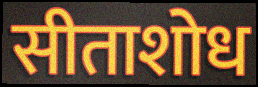
सीताशोध